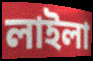
লাইলা